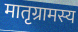
मातृग्रामस्य